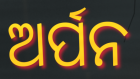
ଅର୍ପନ